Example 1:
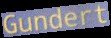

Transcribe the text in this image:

Gundert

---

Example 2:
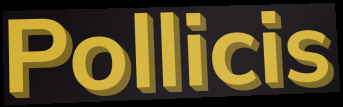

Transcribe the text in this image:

Pollicis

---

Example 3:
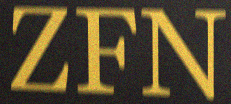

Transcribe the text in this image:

ZFN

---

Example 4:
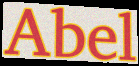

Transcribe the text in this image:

Abel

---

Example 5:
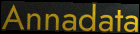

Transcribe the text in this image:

Annadata